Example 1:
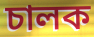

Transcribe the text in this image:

চালক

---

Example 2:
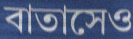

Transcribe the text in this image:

বাতাসেও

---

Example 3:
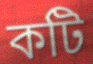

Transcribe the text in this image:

কটি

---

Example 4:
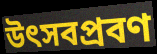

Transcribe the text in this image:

উৎসবপ্রবণ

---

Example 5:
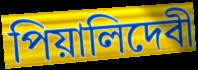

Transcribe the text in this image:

পিয়ালিদেবী